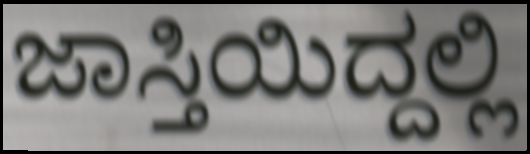
ಜಾಸ್ತಿಯಿದ್ದಲ್ಲಿ